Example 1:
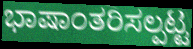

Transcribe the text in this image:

ಭಾಷಾಂತರಿಸಲ್ಪಟ್ಟ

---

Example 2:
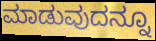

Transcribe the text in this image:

ಮಾಡುವುದನ್ನೂ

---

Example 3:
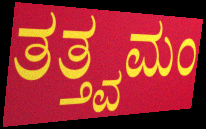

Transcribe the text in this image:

ತತ್ತ್ವಮಂ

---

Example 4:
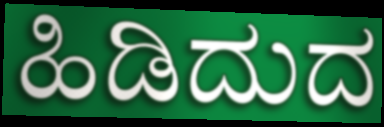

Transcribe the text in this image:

ಹಿಡಿದುದ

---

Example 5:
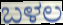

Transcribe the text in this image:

ಬಳಲ